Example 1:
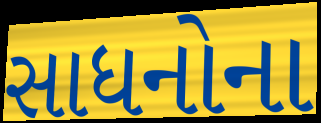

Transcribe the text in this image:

સાધનોના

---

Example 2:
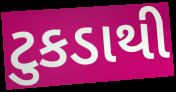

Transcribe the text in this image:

ટુકડાથી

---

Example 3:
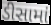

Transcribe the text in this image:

ડીસામાં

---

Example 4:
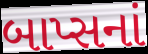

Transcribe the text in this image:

બાપ્સનાં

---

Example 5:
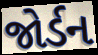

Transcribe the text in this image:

જોર્ડન